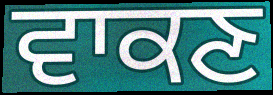
ਵਾਕਣ